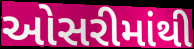
ઓસરીમાંથી